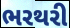
ભરથરી